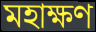
মহাক্ষণ